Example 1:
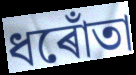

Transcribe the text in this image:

ধৰোঁতা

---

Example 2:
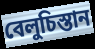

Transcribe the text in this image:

বেলুচিস্তান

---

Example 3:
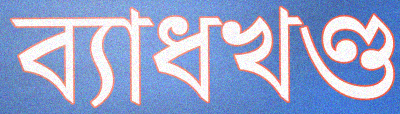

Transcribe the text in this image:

ব্যাধখণ্ড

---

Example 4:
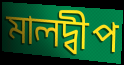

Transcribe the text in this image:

মালদ্বীপ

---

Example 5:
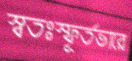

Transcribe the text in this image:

স্বতঃস্ফূৰ্তভাৱে